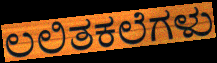
ಲಲಿತಕಲೆಗಳು